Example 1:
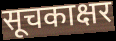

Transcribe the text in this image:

सूचकाक्षर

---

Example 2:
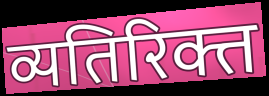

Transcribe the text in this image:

व्यतिरिक्त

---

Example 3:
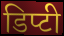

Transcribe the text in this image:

डिप्टी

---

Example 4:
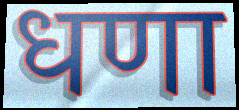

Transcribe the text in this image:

धणा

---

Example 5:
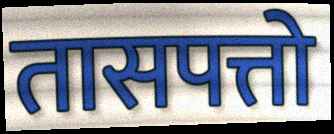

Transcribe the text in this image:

तासपत्तो